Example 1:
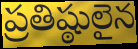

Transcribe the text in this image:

ప్రతిష్ఠులైన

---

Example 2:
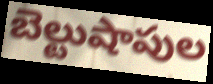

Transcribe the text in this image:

బెల్టుషాపుల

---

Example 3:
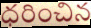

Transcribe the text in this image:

ధరించిన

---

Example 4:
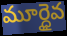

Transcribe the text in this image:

మూర్ధైవ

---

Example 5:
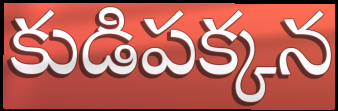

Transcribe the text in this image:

కుడిపక్కన